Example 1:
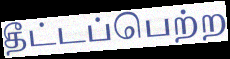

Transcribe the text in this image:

தீட்டப்பெற்ற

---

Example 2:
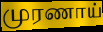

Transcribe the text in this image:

முரணாய்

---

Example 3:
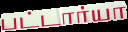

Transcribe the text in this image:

பட்டார்யா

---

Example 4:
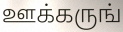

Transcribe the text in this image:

ஊக்கருங்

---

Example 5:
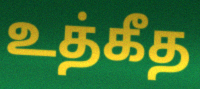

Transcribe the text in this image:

உத்கீத